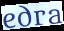
edra